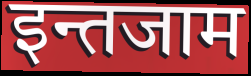
इन्तजाम